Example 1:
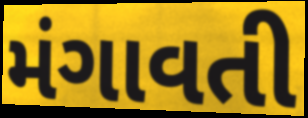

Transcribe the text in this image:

મંગાવતી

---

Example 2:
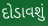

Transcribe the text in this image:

દોડાવશું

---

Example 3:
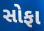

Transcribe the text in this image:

સોફા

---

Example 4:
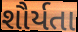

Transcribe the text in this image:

શૌર્યતા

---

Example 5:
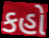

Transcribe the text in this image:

કહો